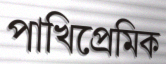
পাখিপ্রেমিক